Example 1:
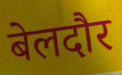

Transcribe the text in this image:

बेलदौर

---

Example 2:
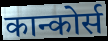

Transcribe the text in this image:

कान्कोर्स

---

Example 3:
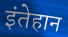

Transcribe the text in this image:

इंतेहान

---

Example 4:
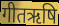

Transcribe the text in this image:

गीतऋषि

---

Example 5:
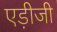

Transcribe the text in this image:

एड़ीजी